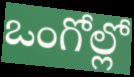
ఒంగోల్లో